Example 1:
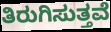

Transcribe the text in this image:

ತಿರುಗಿಸುತ್ತವೆ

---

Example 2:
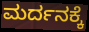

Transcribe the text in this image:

ಮರ್ದನಕ್ಕೆ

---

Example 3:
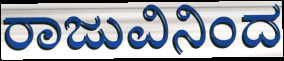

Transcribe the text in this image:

ರಾಜುವಿನಿಂದ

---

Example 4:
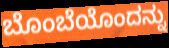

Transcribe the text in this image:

ಬೊಂಬೆಯೊಂದನ್ನು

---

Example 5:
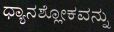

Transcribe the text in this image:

ಧ್ಯಾನಶ್ಲೋಕವನ್ನು